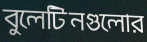
বুলেটিনগুলোর